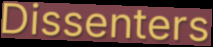
Dissenters